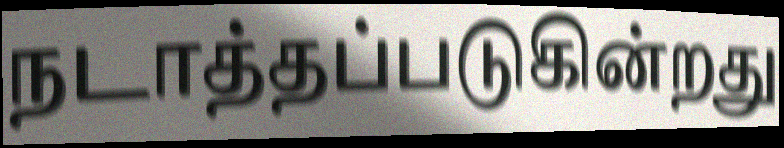
நடாத்தப்படுகின்றது